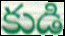
కుడి